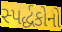
સ્પર્દ્ધકોનો